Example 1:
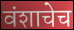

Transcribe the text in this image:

वंशाचेच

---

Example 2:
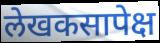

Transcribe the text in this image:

लेखकसापेक्ष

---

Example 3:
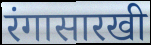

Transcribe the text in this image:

रंगासारखी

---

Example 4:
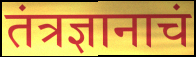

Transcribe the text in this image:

तंत्रज्ञानाचं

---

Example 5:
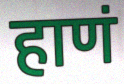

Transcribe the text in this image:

हाणं